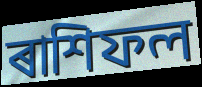
ৰাশিফল